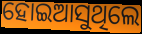
ହୋଇଆସୁଥିଲେ